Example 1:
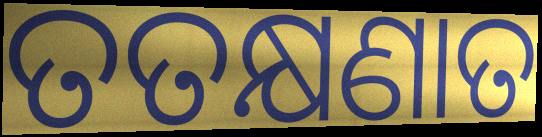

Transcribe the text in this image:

ତତକ୍ଷଣାତ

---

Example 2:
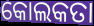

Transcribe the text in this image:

କୋଲକତା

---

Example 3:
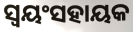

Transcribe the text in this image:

ସ୍ଵୟଂସହାୟକ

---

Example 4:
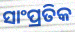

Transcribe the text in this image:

ସାଂପ୍ରତିକ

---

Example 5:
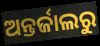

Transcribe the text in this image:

ଅନ୍ତର୍ଜାଲରୁ